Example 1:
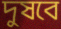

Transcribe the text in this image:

দুষবে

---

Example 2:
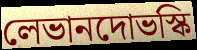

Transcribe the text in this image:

লেভানদোভস্কি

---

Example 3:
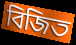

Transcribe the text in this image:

বিজিত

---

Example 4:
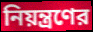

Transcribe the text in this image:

নিয়ন্ত্রণের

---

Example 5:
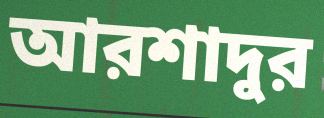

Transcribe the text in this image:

আরশাদুর